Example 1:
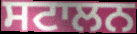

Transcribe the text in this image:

ਸਟਾਲਨ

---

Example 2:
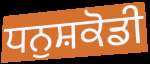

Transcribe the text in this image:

ਧਨੁਸ਼ਕੋਡੀ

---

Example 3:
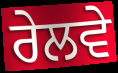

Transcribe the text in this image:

ਰੇਲਵੇ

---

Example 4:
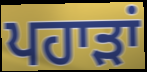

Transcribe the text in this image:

ਪਹਾੜਾਂ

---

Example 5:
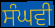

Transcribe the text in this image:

ਸੰਘਵੀ